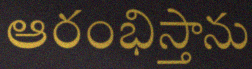
ఆరంభిస్తాను